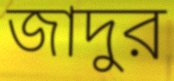
জাদুর